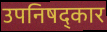
उपनिषद्कार